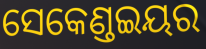
ସେକେଣ୍ଡଇୟର